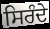
ਸਿਰੰਦੇ